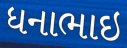
ધનાભાઇ